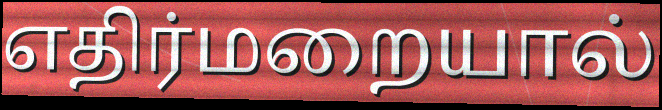
எதிர்மறையால்